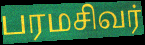
பரமசிவர்